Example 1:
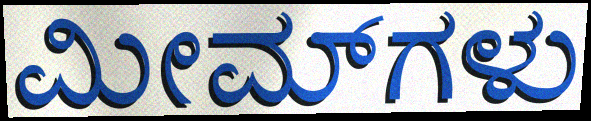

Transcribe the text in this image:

ಮೀಮ್‌ಗಳು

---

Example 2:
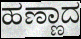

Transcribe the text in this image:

ಹಣ್ಣಾದ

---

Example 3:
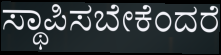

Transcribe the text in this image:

ಸ್ಥಾಪಿಸಬೇಕೆಂದರೆ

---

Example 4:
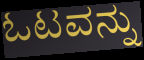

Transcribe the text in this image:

ಓಟವನ್ನು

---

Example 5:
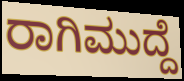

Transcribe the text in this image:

ರಾಗಿಮುದ್ದೆ